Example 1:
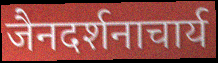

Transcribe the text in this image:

जैनदर्शनाचार्य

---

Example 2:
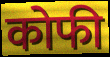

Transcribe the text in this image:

कोफी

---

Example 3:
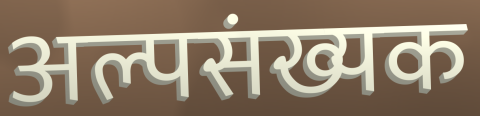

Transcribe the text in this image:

अल्‍पसंख्‍यक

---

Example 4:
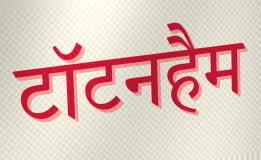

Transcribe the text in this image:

टॉटनहैम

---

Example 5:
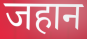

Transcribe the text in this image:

जहान